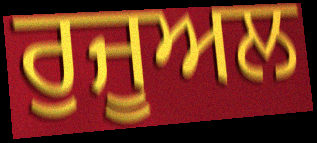
ਰੁਜੂਅਲ